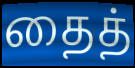
தைத்